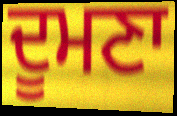
ਦੂਮਣਾ